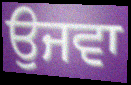
ਉਜਵਾ